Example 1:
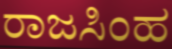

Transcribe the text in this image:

ರಾಜಸಿಂಹ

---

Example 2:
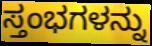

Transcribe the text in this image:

ಸ್ತಂಭಗಳನ್ನು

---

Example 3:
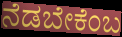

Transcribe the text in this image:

ನೆಡಬೇಕೆಂಬ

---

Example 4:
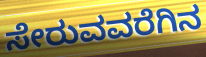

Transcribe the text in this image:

ಸೇರುವವರೆಗಿನ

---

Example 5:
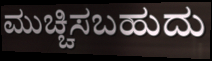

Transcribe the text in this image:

ಮುಚ್ಚಿಸಬಹುದು